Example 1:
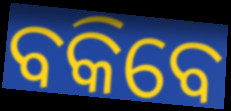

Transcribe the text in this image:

ବକିବେ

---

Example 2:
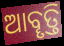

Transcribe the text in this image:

ଆବୄତ୍ତି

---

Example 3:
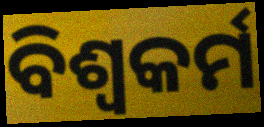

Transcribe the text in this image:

ବିଶ୍ୱକର୍ମ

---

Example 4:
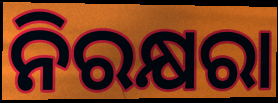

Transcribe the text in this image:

ନିରକ୍ଷରା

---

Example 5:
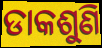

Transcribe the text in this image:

ଡାକଶୁଣି